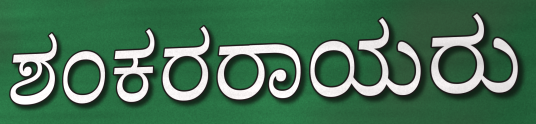
ಶಂಕರರಾಯರು